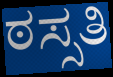
ಠಸ್ಸತಿ